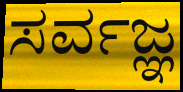
ಸರ್ವಜ್ಞ